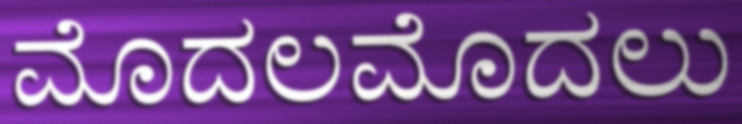
ಮೊದಲಮೊದಲು